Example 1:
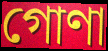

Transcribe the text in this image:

গোণা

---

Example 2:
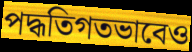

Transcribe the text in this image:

পদ্ধতিগতভাবেও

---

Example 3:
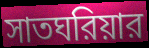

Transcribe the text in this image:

সাতঘরিয়ার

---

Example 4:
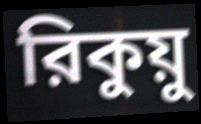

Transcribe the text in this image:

রিকুয়ু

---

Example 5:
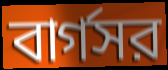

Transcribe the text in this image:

বার্গসর